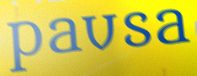
pausa